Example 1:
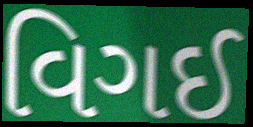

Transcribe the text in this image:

વિગઈ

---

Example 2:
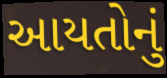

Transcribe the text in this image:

આયતોનું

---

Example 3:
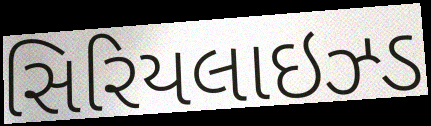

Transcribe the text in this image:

સિરિયલાઇઝ્ડ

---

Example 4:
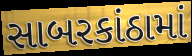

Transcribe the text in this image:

સાબરકાંઠામાં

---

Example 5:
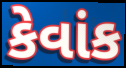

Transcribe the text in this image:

કેવાંક